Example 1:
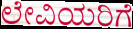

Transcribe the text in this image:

ಲೇವಿಯರಿಗೆ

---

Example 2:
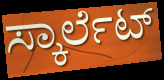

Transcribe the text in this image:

ಸ್ಕಾರ್ಲೆಟ್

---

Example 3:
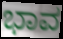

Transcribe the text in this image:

ಭಾವ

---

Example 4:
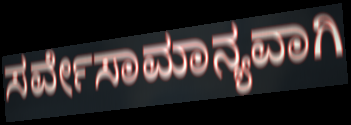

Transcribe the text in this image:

ಸರ್ವೇಸಾಮಾನ್ಯವಾಗಿ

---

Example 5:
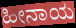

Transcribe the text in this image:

ಹೀನಾಯ